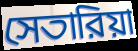
সেতারিয়া